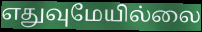
எதுவுமேயில்லை